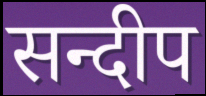
सन्दीप